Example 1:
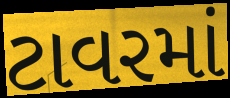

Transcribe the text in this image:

ટાવરમાં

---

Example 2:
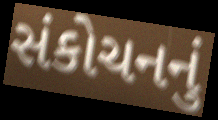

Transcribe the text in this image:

સંકોચનનું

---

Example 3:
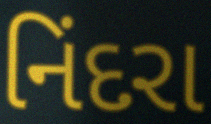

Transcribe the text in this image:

નિંદરા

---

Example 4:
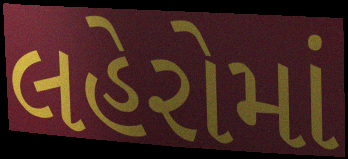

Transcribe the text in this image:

લહેરોમાં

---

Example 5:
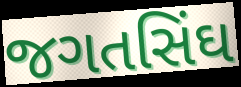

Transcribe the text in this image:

જગતસિંઘ